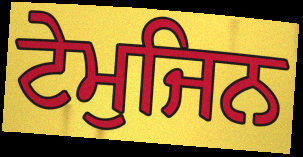
ਟੇਮੁਜਿਨ